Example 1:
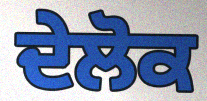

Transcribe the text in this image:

ਦੇਲੋਕ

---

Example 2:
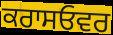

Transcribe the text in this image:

ਕਰਾਸਓਵਰ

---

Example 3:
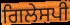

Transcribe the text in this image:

ਗਿਲੇਸਪੀ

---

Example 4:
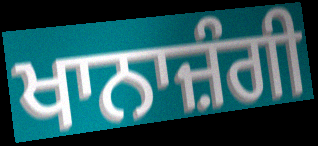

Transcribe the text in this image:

ਖਾਨਾਜ਼ੰਗੀ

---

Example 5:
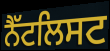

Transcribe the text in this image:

ਨੈੱਟਲਿਸਟ